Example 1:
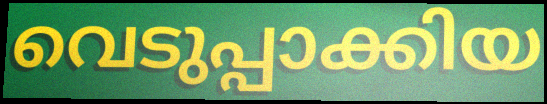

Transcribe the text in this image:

വെടുപ്പാക്കിയ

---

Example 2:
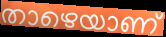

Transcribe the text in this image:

താഴെയാണ്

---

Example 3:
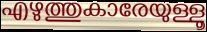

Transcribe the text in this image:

എഴുത്തുകാരേയുള്ളൂ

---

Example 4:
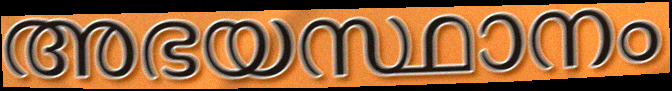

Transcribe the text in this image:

അഭയസ്ഥാനം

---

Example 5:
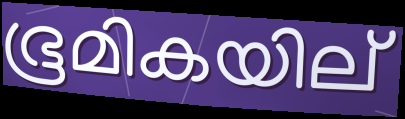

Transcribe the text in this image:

ഭൂമികയില്